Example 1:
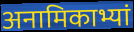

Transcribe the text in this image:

अनामिकाभ्यां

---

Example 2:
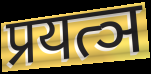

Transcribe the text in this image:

प्रयत्ञ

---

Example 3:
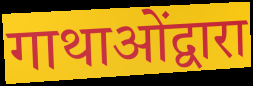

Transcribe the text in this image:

गाथाओंद्वारा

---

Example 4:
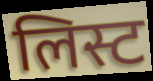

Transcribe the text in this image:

लिस्‍ट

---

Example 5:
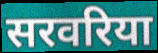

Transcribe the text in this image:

सरवरिया